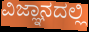
ವಿಜ್ಞಾನದಲ್ಲಿ